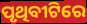
ପୃଥିବୀଟିରେ